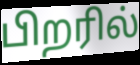
பிறரில்